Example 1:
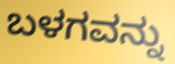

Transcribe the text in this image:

ಬಳಗವನ್ನು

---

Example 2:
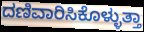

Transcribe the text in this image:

ದಣಿವಾರಿಸಿಕೊಳ್ಳುತ್ತಾ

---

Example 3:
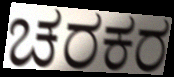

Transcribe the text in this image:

ಚರಕರ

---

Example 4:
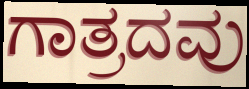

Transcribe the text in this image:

ಗಾತ್ರದವು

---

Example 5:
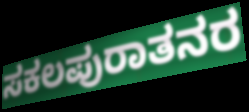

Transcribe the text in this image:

ಸಕಲಪುರಾತನರ